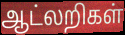
ஆட்லறிகள்